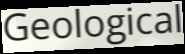
Geological